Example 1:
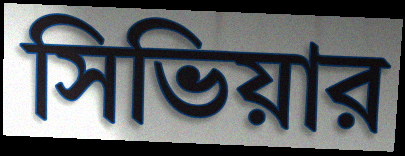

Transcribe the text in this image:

সিভিয়ার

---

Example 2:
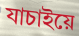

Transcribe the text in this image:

যাচাইয়ে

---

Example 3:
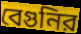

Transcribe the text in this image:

বেগুনির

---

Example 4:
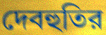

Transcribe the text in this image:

দেবহুতির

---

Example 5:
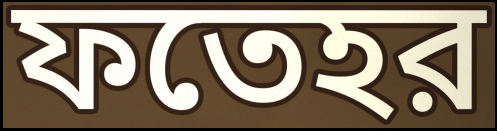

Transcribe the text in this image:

ফতেহর